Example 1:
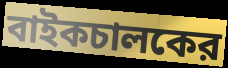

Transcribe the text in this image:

বাইকচালকের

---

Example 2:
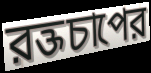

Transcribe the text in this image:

রক্তচাপের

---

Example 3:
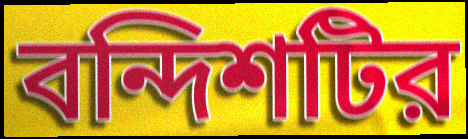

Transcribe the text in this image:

বন্দিশটির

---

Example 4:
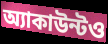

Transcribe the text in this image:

অ্যাকাউন্টও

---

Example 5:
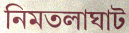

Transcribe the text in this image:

নিমতলাঘাট